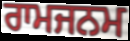
ਰਾਮਜਨਮ